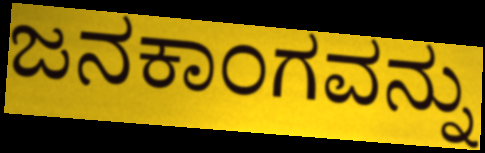
ಜನಕಾಂಗವನ್ನು